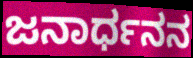
ಜನಾರ್ಧನನ